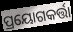
ପ୍ରୟୋଗକର୍ତ୍ତା